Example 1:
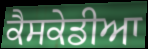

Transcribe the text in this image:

ਕੈਸਕੇਡੀਆ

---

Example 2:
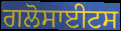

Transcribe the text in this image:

ਗਲੋਸਾਈਟਸ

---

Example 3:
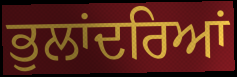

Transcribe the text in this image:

ਭੁਲਾਂਦਰਿਆਂ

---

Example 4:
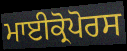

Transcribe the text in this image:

ਮਾਈਕ੍ਰੋਪੋਰਸ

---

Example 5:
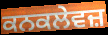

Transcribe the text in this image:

ਕਨਕਲੇਵਜ਼